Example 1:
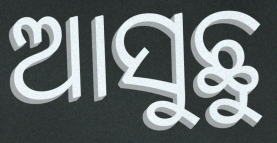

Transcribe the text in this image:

ଆସୁଛୁ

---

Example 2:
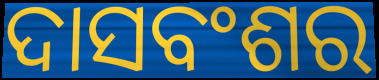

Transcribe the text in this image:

ଦାସବଂଶର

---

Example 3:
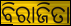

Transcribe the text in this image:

ବିରାଜିତା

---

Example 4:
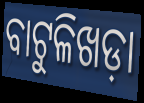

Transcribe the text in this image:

ବାଟୁଳିଖଡ଼ା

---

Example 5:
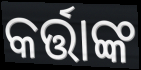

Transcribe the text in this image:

କର୍ତ୍ତାଙ୍କ